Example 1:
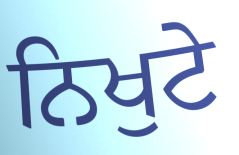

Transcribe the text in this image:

ਨਿਖੁਟੇ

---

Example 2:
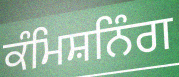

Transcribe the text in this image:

ਕੰਮਿਸ਼ਨਿੰਗ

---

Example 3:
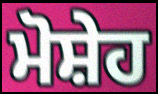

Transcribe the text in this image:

ਮੋਸ਼ੇਹ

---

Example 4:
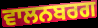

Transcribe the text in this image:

ਵਾਲਨਬਰਗ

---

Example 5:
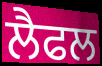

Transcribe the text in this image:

ਲੈਫਲ